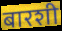
बारशी